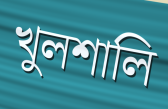
খুলশালি